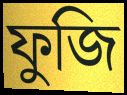
ফুজি